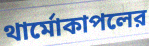
থার্মোকাপলের